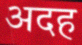
अदह